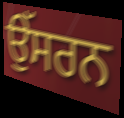
ਉੱਸਰਨ